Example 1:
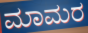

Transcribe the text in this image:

ಮಾಮರ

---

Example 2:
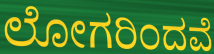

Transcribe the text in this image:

ಲೋಗರಿಂದವೆ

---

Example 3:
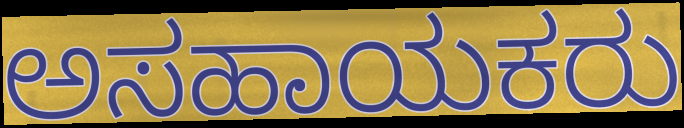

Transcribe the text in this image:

ಅಸಹಾಯಕರು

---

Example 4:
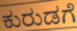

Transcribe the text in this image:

ಕುರುಡಗೆ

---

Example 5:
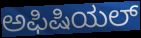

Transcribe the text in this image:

ಅಫಿಷಿಯಲ್